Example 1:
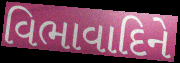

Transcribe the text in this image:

વિભાવાદિને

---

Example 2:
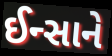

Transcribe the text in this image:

ઈન્સાને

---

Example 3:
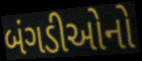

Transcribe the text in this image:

બંગડીઓનો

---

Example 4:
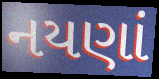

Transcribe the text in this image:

નયણાં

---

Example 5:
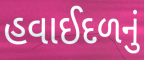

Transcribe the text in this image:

હવાઈદળનું